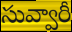
సువ్వారీ